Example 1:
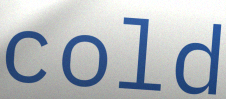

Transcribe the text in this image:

cold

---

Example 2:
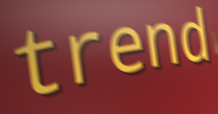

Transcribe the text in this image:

trend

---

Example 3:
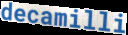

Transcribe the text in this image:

decamilli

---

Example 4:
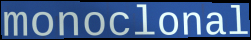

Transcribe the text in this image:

monoclonal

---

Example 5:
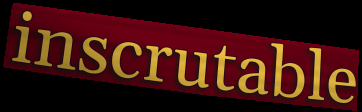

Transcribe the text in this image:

inscrutable